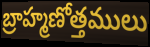
బ్రాహ్మణోత్తములు